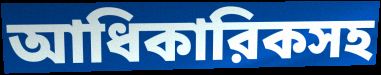
আধিকারিকসহ